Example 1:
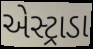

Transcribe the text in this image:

એસ્ટ્રાડા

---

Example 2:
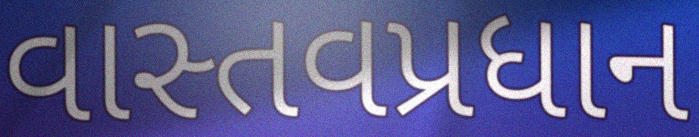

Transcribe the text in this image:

વાસ્તવપ્રધાન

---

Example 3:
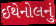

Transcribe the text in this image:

ઈથેનોલનું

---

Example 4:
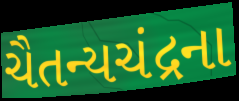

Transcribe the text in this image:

ચૈતન્યચંદ્રના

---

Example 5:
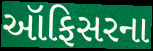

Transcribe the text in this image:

ઑફિસરના